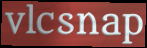
vlcsnap